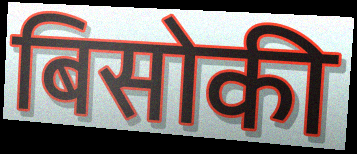
बिसोकी